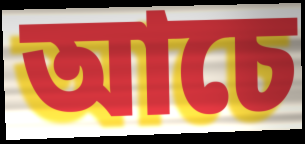
আচে